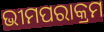
ଭୀମପରାକ୍ରମ